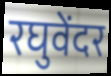
रघुवेंदर